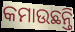
କମାଉଛନ୍ତି